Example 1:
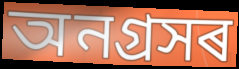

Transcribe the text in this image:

অনগ্ৰসৰ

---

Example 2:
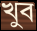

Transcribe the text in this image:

খুব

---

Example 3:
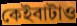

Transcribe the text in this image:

কেইবাটাও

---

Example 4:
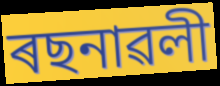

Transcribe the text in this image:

ৰছনাৱলী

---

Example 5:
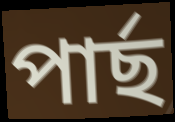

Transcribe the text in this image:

পাৰ্ছ